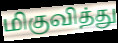
மிகுவித்து